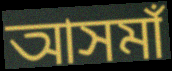
আসমাঁ